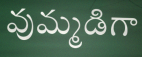
వుమ్మడిగా